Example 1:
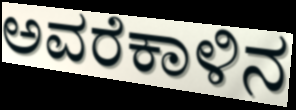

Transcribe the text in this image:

ಅವರೆಕಾಳಿನ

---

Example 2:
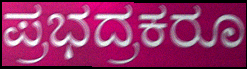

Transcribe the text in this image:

ಪ್ರಭದ್ರಕರೂ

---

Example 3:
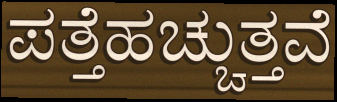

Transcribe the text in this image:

ಪತ್ತೆಹಚ್ಚುತ್ತವೆ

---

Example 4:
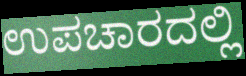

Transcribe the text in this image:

ಉಪಚಾರದಲ್ಲಿ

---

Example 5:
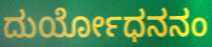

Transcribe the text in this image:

ದುರ್ಯೋಧನನಂ